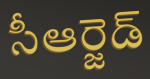
సీఆర్జెడ్